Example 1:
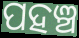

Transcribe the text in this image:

ପହଞ୍ଚ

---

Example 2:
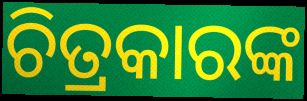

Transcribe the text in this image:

ଚିତ୍ରକାରଙ୍କ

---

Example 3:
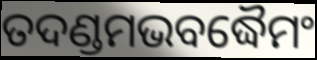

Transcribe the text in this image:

ତଦଣ୍ଡମଭବଦ୍ଧୈମଂ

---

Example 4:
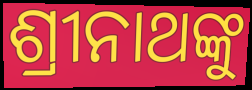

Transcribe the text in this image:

ଶ୍ରୀନାଥଙ୍କୁ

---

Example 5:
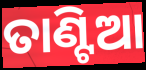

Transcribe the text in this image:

ତାଣ୍ଟିଆ